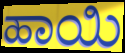
ಹಾಯಿ